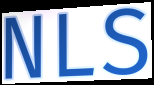
NLS